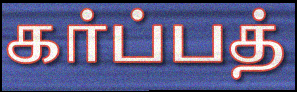
கர்ப்பத்